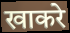
खाकरे